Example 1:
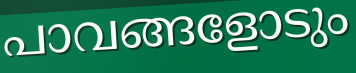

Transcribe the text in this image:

പാവങ്ങളോടും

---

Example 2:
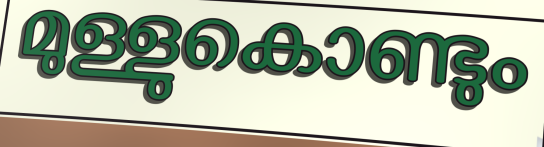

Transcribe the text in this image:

മുള്ളുകൊണ്ടും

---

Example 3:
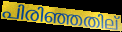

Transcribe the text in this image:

പിരിഞ്ഞതില്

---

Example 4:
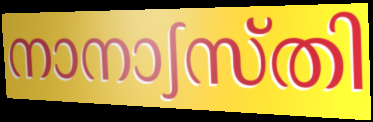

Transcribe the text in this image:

നാനാഽസ്തി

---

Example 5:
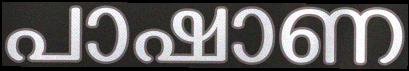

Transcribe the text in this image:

പാഷാണ